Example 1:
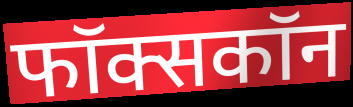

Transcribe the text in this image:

फॉक्सकॉन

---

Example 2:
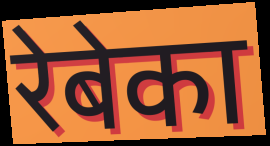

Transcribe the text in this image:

रेबेका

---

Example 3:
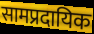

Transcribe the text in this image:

सामप्रदायिक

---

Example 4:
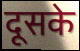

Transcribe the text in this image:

दूसके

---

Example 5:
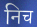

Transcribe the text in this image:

निच